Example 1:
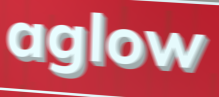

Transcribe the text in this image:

aglow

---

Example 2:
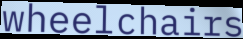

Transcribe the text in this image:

wheelchairs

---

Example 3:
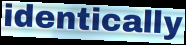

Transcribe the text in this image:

identically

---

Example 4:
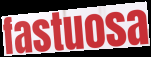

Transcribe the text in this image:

fastuosa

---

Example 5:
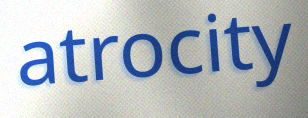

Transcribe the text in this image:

atrocity